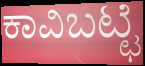
ಕಾವಿಬಟ್ಟೆ